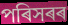
পৰিসৰৰ